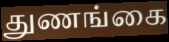
துணங்கை